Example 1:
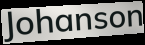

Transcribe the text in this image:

Johanson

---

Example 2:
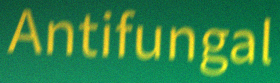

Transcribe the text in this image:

Antifungal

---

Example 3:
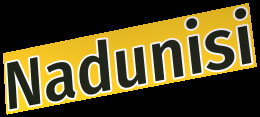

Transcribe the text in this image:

Nadunisi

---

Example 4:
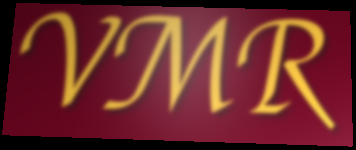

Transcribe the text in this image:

VMR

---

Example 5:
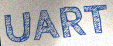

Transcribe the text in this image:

UART